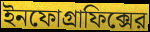
ইনফোগ্রাফিক্সের